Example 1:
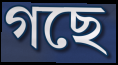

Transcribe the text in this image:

গছে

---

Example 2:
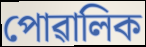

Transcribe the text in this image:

পোৱালিক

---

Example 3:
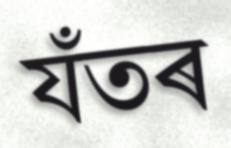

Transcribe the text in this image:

যঁতৰ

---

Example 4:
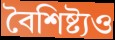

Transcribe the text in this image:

বৈশিষ্ট্যও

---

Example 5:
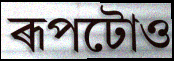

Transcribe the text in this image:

ৰূপটোও